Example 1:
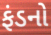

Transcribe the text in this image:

ફંડનો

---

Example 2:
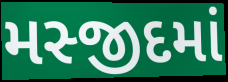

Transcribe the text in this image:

મસ્જીદમાં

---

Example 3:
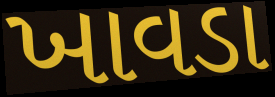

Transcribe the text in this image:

ખાવડા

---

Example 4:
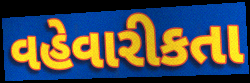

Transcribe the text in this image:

વહેવારીકતા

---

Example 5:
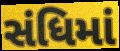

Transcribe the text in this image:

સંધિમાં